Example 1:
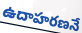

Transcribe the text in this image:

ఉదాహరణనే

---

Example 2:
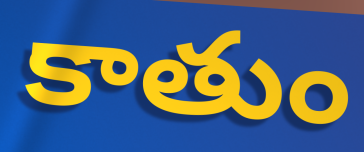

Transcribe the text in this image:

కాతుం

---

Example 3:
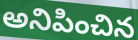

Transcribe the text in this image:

అనిపించిన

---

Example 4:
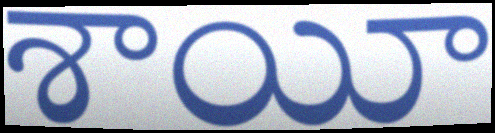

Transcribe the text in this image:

శాయీ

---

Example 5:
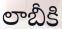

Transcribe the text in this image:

లాబీకి